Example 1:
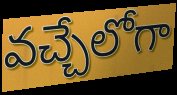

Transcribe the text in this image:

వచ్చేలోగా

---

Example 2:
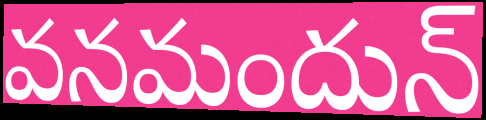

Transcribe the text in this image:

వనమందున్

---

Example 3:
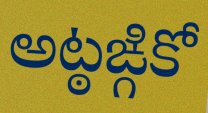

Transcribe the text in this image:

అట్ఠఙ్గికో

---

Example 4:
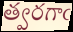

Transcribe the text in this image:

త్వరగాఁ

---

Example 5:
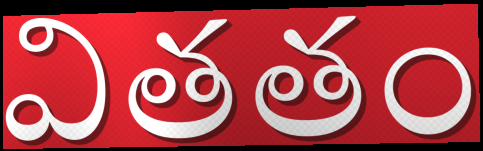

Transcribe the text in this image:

వితతం